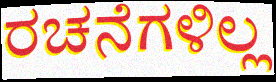
ರಚನೆಗಳಿಲ್ಲ